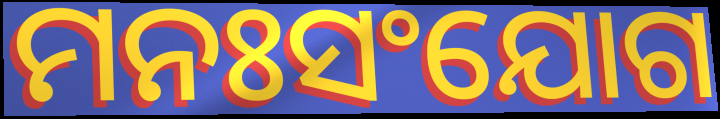
ମନଃସଂଯୋଗ